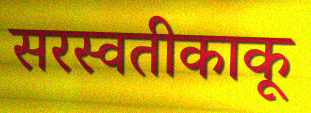
सरस्वतीकाकू